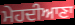
ਮੇਹਦੀਆਣਾ